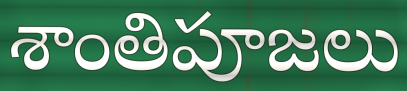
శాంతిపూజలు